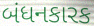
બંધનકારક